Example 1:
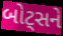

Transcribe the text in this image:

બોટ્સને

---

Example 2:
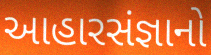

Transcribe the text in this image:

આહારસંજ્ઞાનો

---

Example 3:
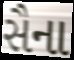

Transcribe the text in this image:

સૈના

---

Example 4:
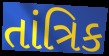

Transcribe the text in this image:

તાંત્રિક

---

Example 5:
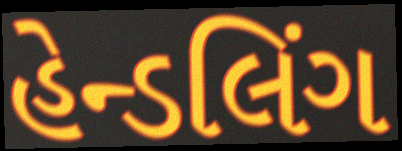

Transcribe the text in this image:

હેન્ડલિંગ